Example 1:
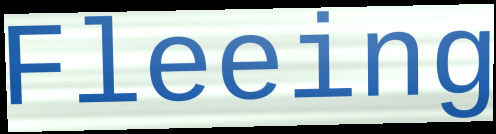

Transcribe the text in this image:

Fleeing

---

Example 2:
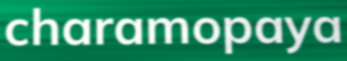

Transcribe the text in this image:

charamopaya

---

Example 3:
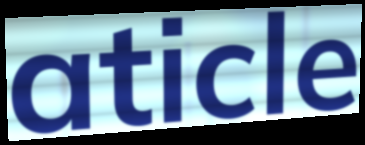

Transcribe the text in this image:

aticle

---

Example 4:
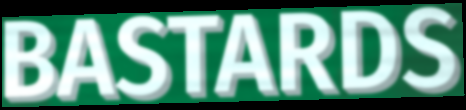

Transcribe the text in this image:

BASTARDS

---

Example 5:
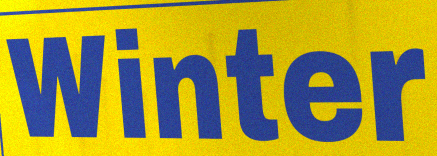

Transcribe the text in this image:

Winter